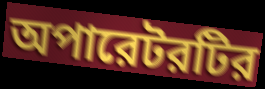
অপারেটরটির